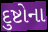
દુષ્ટોના